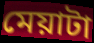
মেয়াটা